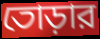
তোড়ার